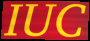
IUC